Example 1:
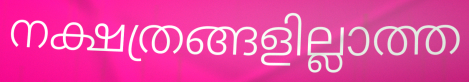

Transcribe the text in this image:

നക്ഷത്രങ്ങളില്ലാത്ത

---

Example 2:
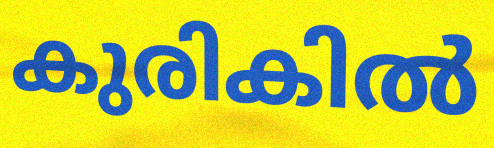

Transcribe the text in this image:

കുരികിൽ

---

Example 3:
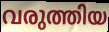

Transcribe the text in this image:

വരുത്തിയ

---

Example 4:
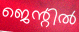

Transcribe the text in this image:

ജെന്റിൽ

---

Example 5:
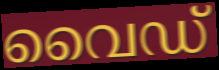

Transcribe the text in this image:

വൈഡ്